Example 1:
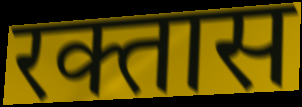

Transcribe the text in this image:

रक्तास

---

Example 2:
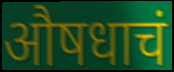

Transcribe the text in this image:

औषधाचं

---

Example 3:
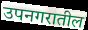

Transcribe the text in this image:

उपनगरातील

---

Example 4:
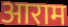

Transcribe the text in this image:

आराम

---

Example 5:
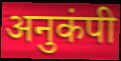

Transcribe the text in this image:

अनुकंपी